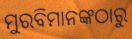
ମୁରବିମାନଙ୍କଠାରୁ